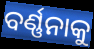
ବର୍ଣ୍ଣନାକୁ